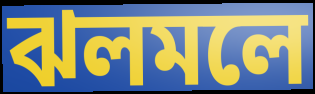
ঝলমলে